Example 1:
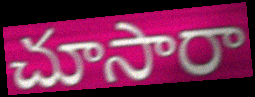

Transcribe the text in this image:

చూసారా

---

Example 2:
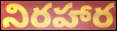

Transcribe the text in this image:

నిరహార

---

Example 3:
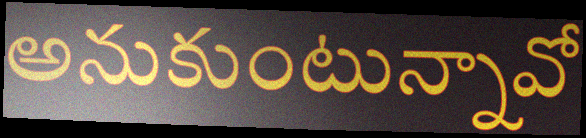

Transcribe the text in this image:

అనుకుంటున్నావో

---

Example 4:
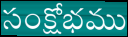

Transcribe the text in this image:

సంక్షోభము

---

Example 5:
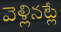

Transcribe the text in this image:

వెళ్లినట్లే